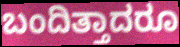
ಬಂದಿತ್ತಾದರೂ